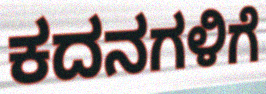
ಕದನಗಳಿಗೆ